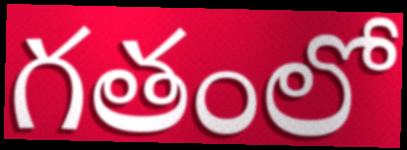
గతంలో